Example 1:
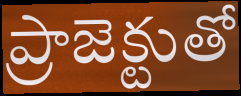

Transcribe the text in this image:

ప్రాజెక్టుతో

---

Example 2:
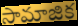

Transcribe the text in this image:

సామాజిక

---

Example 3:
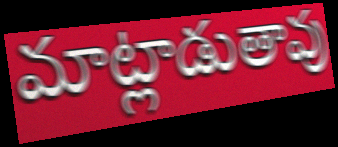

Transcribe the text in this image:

మాట్లాడుతావు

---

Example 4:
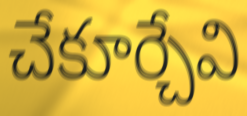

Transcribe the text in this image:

చేకూర్చేవి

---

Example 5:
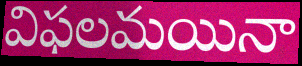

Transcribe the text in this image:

విఫలమయినా